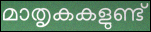
മാതൃകകളുണ്ട്